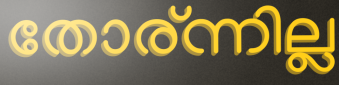
തോര്ന്നില്ല